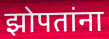
झोपतांना